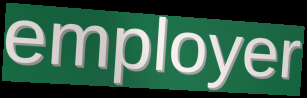
employer